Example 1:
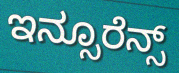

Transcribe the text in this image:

ಇನ್ಸೂರೆನ್ಸ್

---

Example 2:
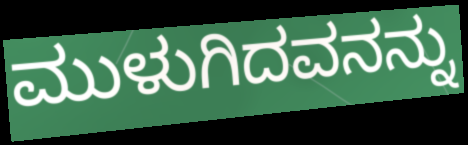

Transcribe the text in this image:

ಮುಳುಗಿದವನನ್ನು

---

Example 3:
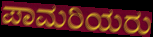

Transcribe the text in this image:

ಪಾಮರಿಯರು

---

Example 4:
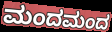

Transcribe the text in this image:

ಮಂದಮಂದ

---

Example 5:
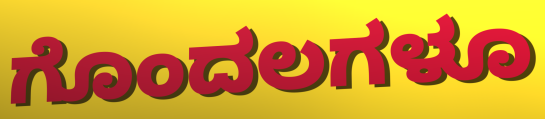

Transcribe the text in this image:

ಗೊಂದಲಗಳೂ